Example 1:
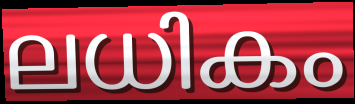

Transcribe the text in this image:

ലധികം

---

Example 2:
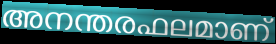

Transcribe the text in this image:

അനന്തരഫലമാണ്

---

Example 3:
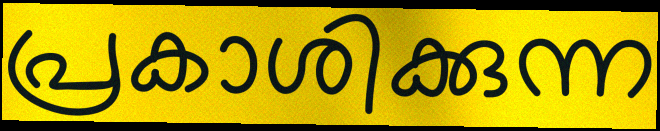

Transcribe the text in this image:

പ്രകാശിക്കുന്ന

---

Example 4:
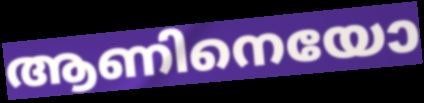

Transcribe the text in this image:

ആണിനെയോ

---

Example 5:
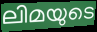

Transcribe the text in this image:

ലിമയുടെ